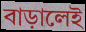
বাড়ালেই